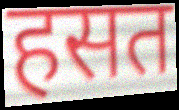
हसत